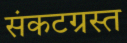
संकटग्रस्त